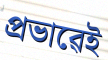
প্ৰভাৱেই